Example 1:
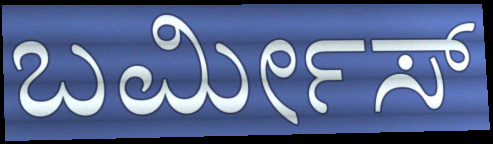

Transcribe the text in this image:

ಬರ್ಮೀಸ್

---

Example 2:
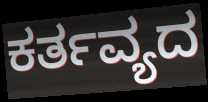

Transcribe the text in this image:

ಕರ್ತವ್ಯದ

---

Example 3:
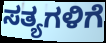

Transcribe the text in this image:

ಸತ್ಯಗಳಿಗೆ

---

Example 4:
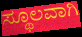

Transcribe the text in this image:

ಸ್ಥೂಲವಾಗಿ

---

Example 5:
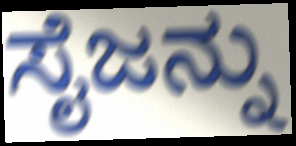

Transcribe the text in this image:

ಸೈಜನ್ನು